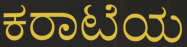
ಕರಾಟೆಯ